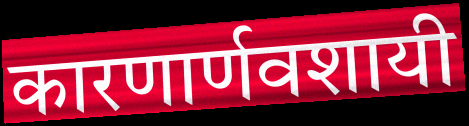
कारणार्णवशायी